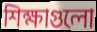
শিক্ষাগুলো